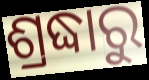
ଶ୍ରଦ୍ଧାରୁ